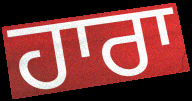
ਹਾਰਾ